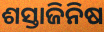
ଶସ୍ତାଜିନିଷ